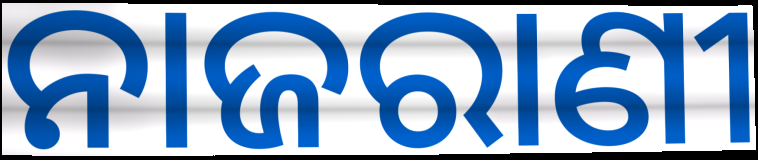
ନାଜରାଣୀ